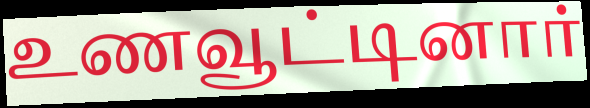
உணவூட்டினார்